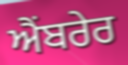
ਐਂਬਰੇਰ